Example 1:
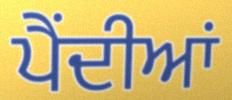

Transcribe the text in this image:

ਪੈਂਦੀਆਂ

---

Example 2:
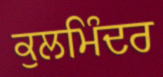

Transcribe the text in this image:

ਕੁਲਮਿੰਦਰ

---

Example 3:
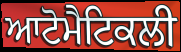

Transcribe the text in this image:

ਆਟੋਮੈਟਿਕਲੀ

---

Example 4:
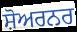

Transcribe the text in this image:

ਸ਼ੋਅਰਨਰ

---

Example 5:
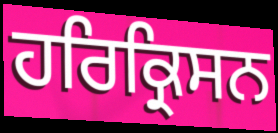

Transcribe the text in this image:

ਹਰਿਕ੍ਰਿਸਨ